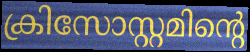
ക്രിസോസ്റ്റമിന്റെ